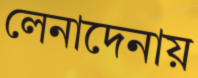
লেনাদেনায়